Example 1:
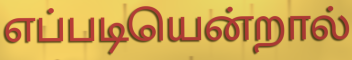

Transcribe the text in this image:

எப்படியென்றால்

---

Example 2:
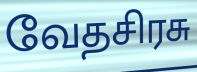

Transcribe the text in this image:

வேதசிரசு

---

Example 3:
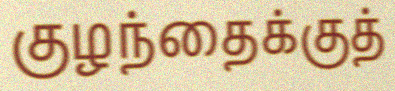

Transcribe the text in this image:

குழந்தைக்குத்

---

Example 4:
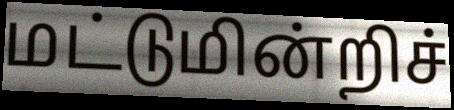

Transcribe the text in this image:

மட்டுமின்றிச்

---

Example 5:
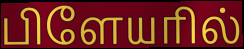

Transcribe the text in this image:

பிளேயரில்